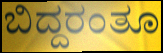
ಬಿದ್ದರಂತೂ